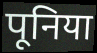
पूनिया